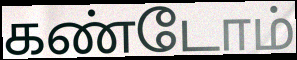
கண்டோம்